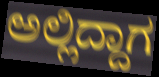
ಅಲ್ಲಿದ್ದಾಗ